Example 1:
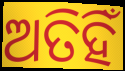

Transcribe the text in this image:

ଅତିହିଁ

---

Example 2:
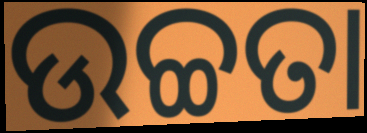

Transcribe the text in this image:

ଉଚ୍ଚତା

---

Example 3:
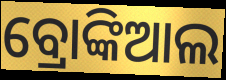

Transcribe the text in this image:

ବ୍ରୋଙ୍କିଆଲ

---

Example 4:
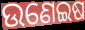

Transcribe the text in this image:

ଉଣେଇଷ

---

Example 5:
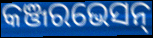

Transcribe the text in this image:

କଞ୍ଜରଭେସନ୍